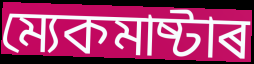
ম্যেকমাষ্টাৰ